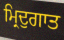
ਮ੍ਰਿਦੁਗਾਤ